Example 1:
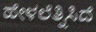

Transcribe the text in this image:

ಹೇಳಲೆತ್ನಿಸಿದೆ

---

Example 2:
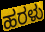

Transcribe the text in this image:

ಹರಳು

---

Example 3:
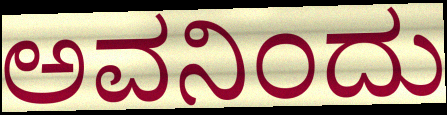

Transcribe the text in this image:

ಅವನಿಂದು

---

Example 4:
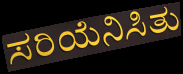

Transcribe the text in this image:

ಸರಿಯೆನಿಸಿತು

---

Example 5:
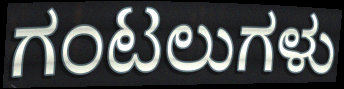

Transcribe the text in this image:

ಗಂಟಲುಗಳು